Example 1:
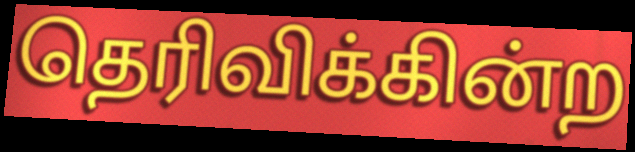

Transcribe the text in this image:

தெரிவிக்கின்ற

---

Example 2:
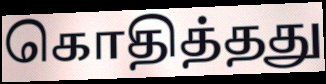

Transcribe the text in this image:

கொதித்தது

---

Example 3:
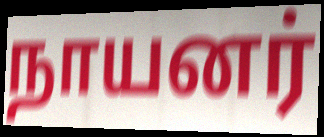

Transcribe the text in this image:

நாயனர்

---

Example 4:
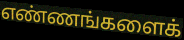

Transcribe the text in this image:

எண்ணங்களைக்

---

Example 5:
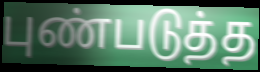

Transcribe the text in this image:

புண்படுத்த